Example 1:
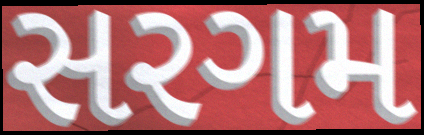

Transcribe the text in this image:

સરગમ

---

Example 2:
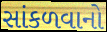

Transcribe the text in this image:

સાંકળવાનો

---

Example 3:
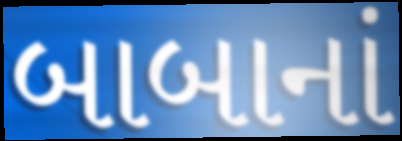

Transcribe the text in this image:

બાબાનાં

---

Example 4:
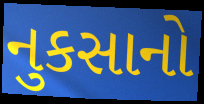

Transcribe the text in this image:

નુકસાનો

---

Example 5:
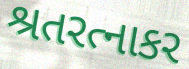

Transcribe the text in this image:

શ્રતરત્નાકર